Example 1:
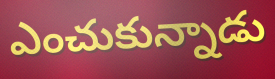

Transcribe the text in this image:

ఎంచుకున్నాడు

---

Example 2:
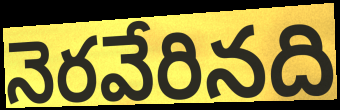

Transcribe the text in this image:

నెరవేరినది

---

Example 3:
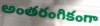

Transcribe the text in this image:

అంతరంగికంగా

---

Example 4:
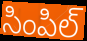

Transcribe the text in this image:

సింపిల్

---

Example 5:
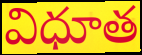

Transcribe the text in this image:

విధూత